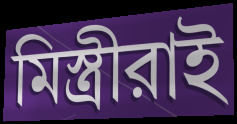
মিস্ত্রীরাই